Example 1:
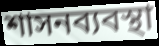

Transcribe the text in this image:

শাসনব্যবস্থা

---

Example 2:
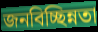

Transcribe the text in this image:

জনবিচ্ছিন্নতা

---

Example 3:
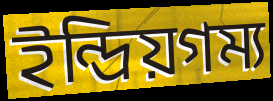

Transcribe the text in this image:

ইন্দ্রিয়গম্য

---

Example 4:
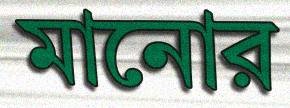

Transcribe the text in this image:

মানোর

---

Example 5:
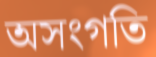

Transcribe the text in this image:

অসংগতি